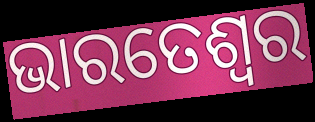
ଭାରତେଶ୍ୱର